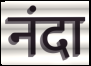
नंदा